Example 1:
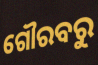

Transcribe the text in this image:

ଗୌରବରୁ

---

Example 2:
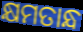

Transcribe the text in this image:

କ୍ଷମତାନ୍ଧ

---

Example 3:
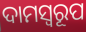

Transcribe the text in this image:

ଦାମସ୍ୱରୂପ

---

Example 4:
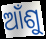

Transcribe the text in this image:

ଆଁଶୁ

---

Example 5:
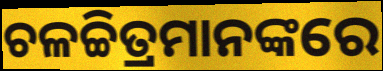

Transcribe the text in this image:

ଚଳଚ୍ଚିତ୍ରମାନଙ୍କରେ